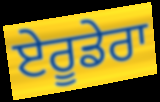
ਏਰੂਡੇਰਾ